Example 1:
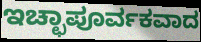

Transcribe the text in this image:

ಇಚ್ಛಾಪೂರ್ವಕವಾದ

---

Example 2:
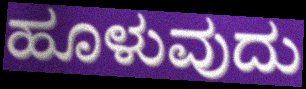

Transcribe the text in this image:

ಹೂಳುವುದು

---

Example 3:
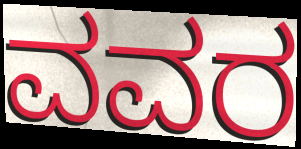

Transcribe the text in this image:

ವವರ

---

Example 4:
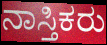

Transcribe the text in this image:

ನಾಸ್ತಿಕರು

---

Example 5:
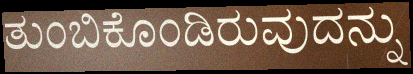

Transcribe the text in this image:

ತುಂಬಿಕೊಂಡಿರುವುದನ್ನು